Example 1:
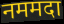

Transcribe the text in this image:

नममदा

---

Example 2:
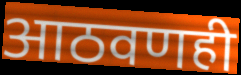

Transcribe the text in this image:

आठवणही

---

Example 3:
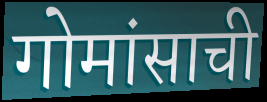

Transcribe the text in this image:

गोमांसाची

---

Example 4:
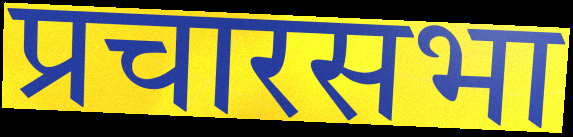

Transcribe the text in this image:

प्रचारसभा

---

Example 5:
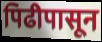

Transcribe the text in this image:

पिढीपासून